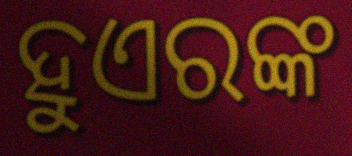
ହୁଏରଙ୍କ